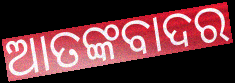
ଆତଙ୍କବାଦର